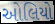
ઓલિયો